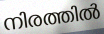
നിരത്തിൽ